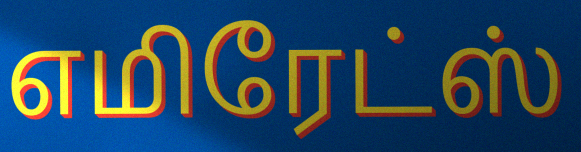
எமிரேட்ஸ்